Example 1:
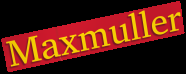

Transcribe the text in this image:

Maxmuller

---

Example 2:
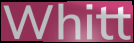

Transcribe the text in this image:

Whitt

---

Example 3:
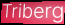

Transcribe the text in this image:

Triberg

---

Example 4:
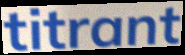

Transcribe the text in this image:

titrant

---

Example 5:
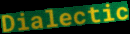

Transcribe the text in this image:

Dialectic